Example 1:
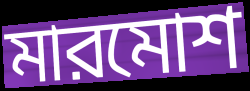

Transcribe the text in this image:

মারমোশ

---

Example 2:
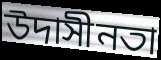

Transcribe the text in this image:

উদাসীনতা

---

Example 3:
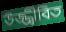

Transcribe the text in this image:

উজ্জ্বীবিত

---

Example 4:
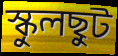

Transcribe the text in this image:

স্কুলছুট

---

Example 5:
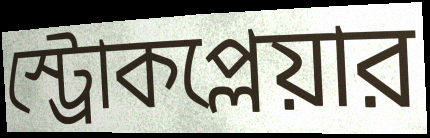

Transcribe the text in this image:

স্ট্রোকপ্লেয়ার